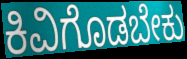
ಕಿವಿಗೊಡಬೇಕು